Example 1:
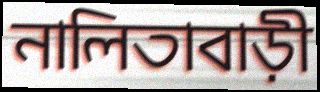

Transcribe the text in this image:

নালিতাবাড়ী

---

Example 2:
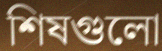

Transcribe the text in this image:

শিষগুলো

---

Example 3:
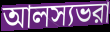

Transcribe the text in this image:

আলস্যভরা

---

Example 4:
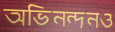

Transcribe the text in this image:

অভিনন্দনও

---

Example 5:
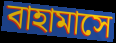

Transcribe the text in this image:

বাহামাসে